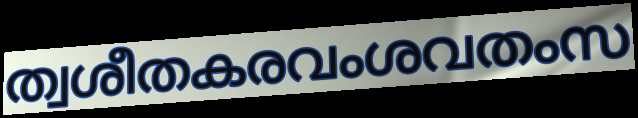
ത്വശീതകരവംശവതംസ